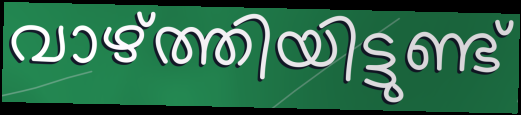
വാഴ്ത്തിയിട്ടുണ്ട്